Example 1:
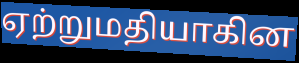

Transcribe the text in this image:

ஏற்றுமதியாகின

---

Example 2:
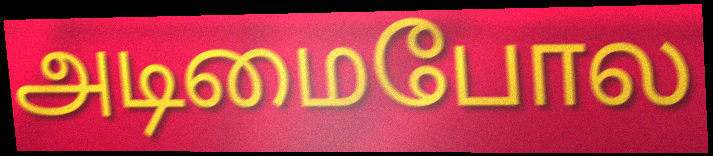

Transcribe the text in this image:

அடிமைபோல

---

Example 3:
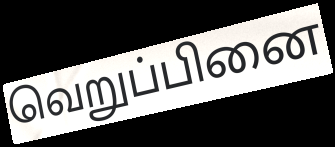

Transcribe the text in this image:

வெறுப்பினை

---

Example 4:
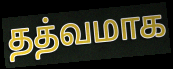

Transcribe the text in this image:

தத்வமாக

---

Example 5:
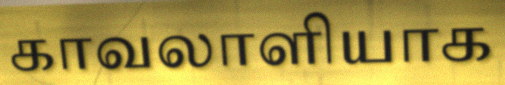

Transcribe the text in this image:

காவலாளியாக